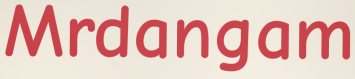
Mrdangam